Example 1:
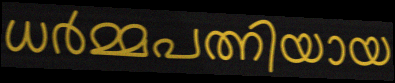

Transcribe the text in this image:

ധർമ്മപത്നിയായ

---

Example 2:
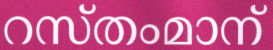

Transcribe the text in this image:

റസ്തംമാന്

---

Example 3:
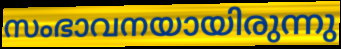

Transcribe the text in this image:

സംഭാവനയായിരുന്നു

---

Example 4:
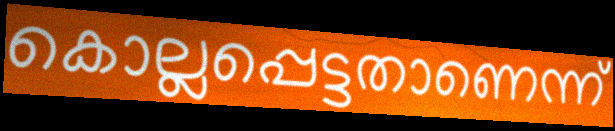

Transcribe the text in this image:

കൊല്ലപ്പെട്ടതാണെന്ന്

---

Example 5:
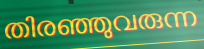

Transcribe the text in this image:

തിരഞ്ഞുവരുന്ന